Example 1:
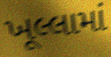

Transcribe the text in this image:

ખૂલ્લામાં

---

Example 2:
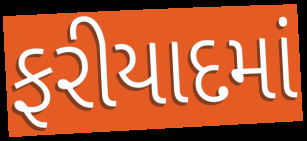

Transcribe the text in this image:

ફરીયાદમાં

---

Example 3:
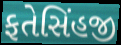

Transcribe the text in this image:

ફતેસિંહજી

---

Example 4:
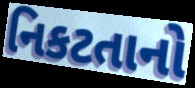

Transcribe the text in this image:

નિકટતાનો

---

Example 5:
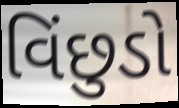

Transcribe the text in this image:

વિંછુડો